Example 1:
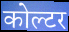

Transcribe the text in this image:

कोल्टर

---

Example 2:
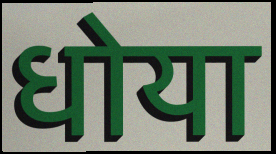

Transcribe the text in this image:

धोया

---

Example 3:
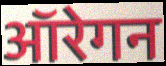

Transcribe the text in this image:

ऑरेगन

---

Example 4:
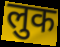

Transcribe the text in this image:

लुक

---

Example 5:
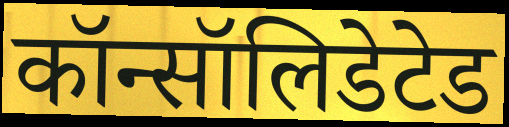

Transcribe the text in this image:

कॉन्सॉलिडेटेड